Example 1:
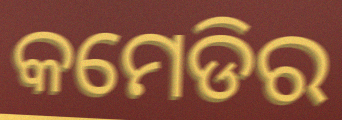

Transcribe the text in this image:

କମେଡିର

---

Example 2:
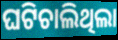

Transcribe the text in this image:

ଘଟିଚାଲିଥିଲା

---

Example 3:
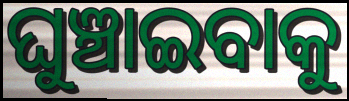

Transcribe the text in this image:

ଘୁଞ୍ଚାଇବାକୁ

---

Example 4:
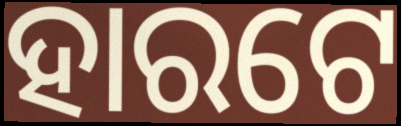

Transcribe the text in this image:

ହାରଟେ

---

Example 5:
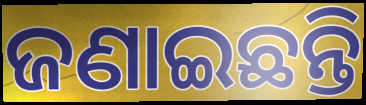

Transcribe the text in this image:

ଜଣାଇଛନ୍ତି